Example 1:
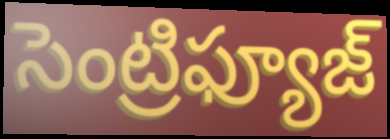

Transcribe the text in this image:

సెంట్రిఫ్యూజ్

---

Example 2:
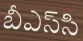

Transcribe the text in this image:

బీఎస్‌సి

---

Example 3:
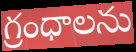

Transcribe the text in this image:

గ్రంధాలను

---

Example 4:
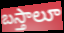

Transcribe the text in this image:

బస్తాలూ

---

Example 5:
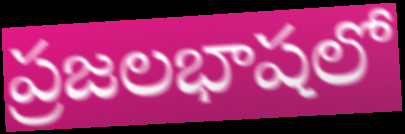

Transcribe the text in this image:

ప్రజలభాషలో